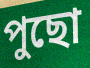
পুছো